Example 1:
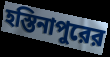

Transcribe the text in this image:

হস্তিনাপুরের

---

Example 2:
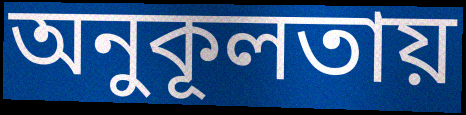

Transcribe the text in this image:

অনুকূলতায়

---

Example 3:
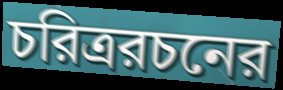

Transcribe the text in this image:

চরিত্ররচনের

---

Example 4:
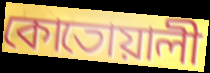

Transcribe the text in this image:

কোতোয়ালী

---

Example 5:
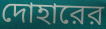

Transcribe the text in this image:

দোহারের